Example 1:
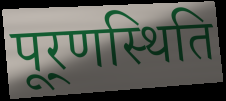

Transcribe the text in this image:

पूर्णस्थिति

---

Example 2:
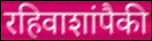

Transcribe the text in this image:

रहिवाशांपैकी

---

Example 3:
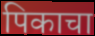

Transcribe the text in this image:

पिकाचा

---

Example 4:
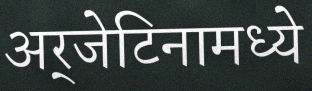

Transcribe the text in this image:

अर्जेटिनामध्ये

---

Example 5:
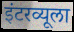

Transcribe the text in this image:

इंटरव्यूला